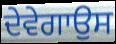
ਦੇਵੇਗਾਉਸ